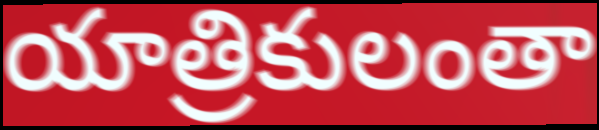
యాత్రికులంతా